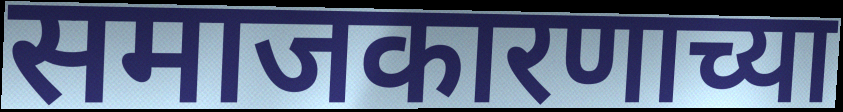
समाजकारणाच्या